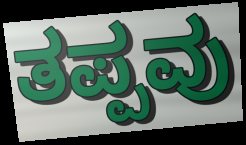
ತಪ್ಪವು